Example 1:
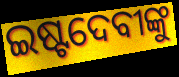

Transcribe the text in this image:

ଇଷ୍ଟଦେବୀଙ୍କୁ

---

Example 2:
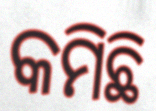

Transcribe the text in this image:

କମିଛି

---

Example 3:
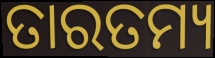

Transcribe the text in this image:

ତାରତମ୍ୟ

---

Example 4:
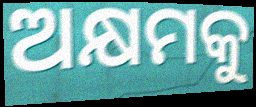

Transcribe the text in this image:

ଅକ୍ଷମକୁ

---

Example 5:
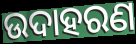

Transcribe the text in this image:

ଉଦାହରଣ